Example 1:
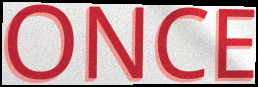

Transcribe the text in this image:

ONCE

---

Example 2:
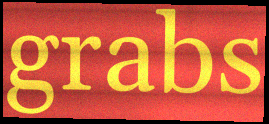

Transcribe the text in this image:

grabs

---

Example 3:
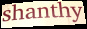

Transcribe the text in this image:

shanthy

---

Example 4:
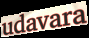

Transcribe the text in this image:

udavara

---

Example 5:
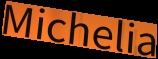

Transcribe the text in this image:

Michelia